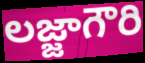
లజ్జాగౌరి